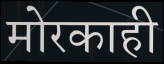
मोरकाही